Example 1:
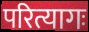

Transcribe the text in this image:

परित्यागः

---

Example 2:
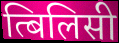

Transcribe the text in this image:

त्बिलिसी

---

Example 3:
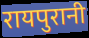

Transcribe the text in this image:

रायपुरानी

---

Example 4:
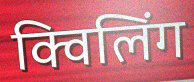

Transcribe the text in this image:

क्विलिंग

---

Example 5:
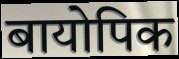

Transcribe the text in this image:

बायोपिक